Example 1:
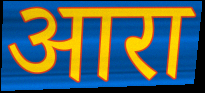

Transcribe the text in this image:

आरा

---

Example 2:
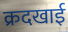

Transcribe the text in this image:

क्रदखाई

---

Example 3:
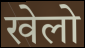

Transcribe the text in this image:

खेलो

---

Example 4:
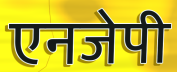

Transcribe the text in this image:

एनजेपी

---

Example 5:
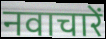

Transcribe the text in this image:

नवाचारें